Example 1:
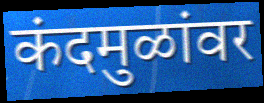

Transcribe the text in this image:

कंदमुळांवर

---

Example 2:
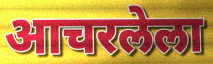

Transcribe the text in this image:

आचरलेला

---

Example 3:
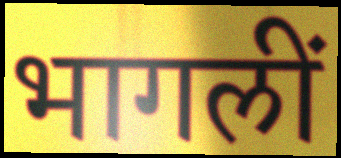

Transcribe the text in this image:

भागलीं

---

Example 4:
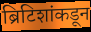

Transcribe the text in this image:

ब्रिटिशांकडून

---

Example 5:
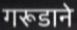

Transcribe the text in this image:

गरूडाने